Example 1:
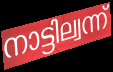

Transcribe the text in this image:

നാട്ടില്വന്ന്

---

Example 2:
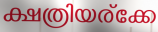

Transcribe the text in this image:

ക്ഷത്രിയര്ക്കേ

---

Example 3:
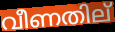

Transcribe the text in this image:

വീണതില്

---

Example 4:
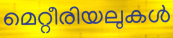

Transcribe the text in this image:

മെറ്റീരിയലുകൾ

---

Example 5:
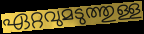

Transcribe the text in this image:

ഏറ്റവുമടുത്തുള്ള